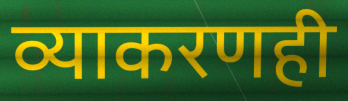
व्याकरणही